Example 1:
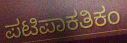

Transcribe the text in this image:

ಪಟಿಪಾಕತಿಕಂ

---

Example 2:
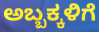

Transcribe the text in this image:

ಅಬ್ಬಕ್ಕಳಿಗೆ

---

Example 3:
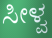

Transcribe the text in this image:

ಸೀಳ್ವ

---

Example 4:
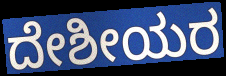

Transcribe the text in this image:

ದೇಶೀಯರ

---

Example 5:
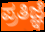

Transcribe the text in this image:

ಪ್ರತಿಜ್ಞೆ